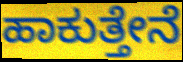
ಹಾಕುತ್ತೇನೆ